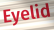
Eyelid